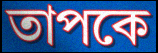
তাপকে